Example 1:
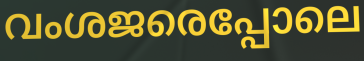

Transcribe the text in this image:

വംശജരെപ്പോലെ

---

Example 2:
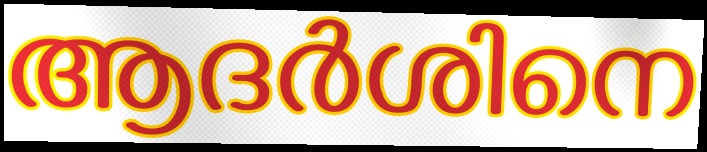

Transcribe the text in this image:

ആദർശിനെ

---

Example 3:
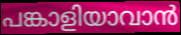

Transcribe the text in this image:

പങ്കാളിയാവാൻ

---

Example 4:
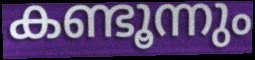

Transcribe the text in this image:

കണ്ടൂന്നും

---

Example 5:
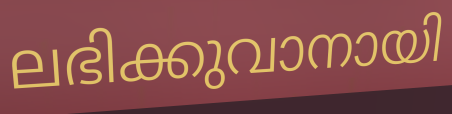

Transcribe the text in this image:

ലഭിക്കുവാനായി